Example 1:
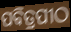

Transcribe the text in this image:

ପବିତ୍ରପୀଠ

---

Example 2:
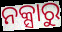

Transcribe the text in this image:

ନକ୍ସାରୁ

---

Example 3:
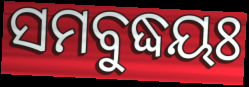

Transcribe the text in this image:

ସମବୁଦ୍ଧୟଃ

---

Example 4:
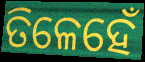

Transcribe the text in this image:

ତିଳେହେଁ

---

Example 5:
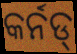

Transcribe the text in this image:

କର୍ନଡ୍